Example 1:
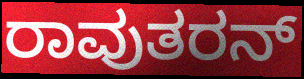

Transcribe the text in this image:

ರಾವುತರನ್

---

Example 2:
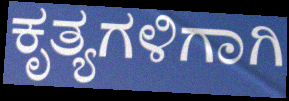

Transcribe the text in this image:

ಕೃತ್ಯಗಳಿಗಾಗಿ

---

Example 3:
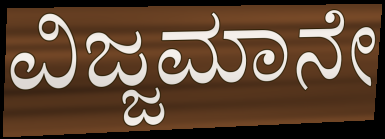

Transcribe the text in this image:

ವಿಜ್ಜಮಾನೇ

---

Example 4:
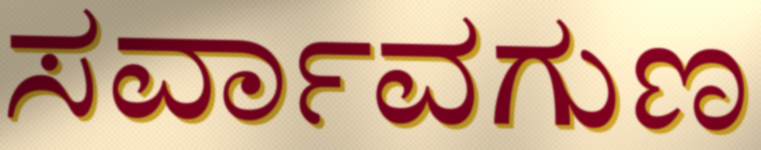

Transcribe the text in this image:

ಸರ್ವಾವಗುಣ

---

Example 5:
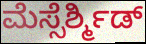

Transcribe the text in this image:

ಮೆಸ್ಸೆರ್ಶ್ಮಿಡ್